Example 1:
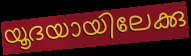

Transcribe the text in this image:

യൂദയായിലേക്കു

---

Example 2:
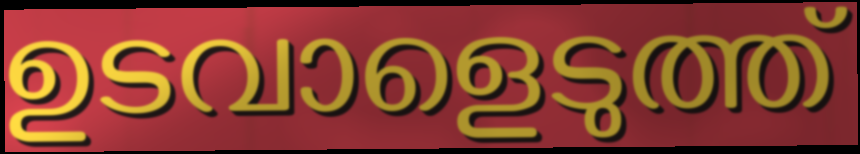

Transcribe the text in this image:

ഉടവാളെടുത്ത്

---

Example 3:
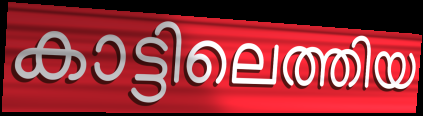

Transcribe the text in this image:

കാട്ടിലെത്തിയ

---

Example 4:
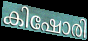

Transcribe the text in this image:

കിഷോരി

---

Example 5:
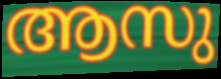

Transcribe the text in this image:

ആസു